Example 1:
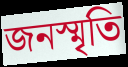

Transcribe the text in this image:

জনস্মৃতি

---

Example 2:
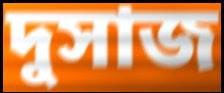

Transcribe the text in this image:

দুসাজ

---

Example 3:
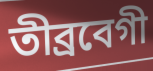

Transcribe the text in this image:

তীব্ৰবেগী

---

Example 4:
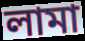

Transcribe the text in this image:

লামা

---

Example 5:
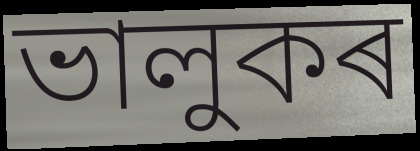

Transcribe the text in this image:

ভালুকৰ